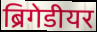
ब्रिगेडीयर